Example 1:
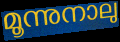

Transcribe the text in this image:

മൂന്നുനാലു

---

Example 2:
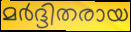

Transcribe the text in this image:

മർദ്ദിതരായ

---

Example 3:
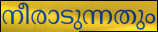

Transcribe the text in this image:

നീരാടുന്നതും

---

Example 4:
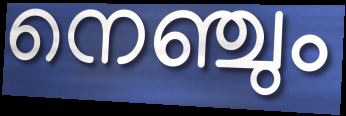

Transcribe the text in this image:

നെഞ്ചും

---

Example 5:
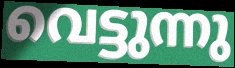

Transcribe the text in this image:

വെട്ടുന്നു